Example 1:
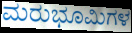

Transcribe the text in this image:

ಮರುಭೂಮಿಗಳ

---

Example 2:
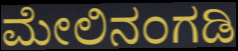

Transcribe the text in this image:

ಮೇಲಿನಂಗಡಿ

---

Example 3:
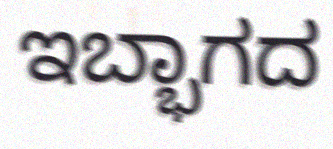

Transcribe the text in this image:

ಇಬ್ಭಾಗದ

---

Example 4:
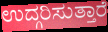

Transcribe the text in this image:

ಉದ್ಗರಿಸುತ್ತಾರೆ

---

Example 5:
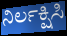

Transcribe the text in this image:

ನಿರ್ಲಕ್ಷಿಸಿ